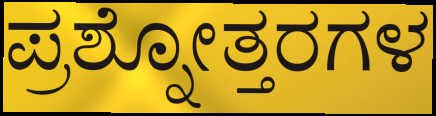
ಪ್ರಶ್ನೋತ್ತರಗಳ